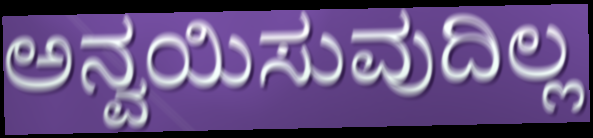
ಅನ್ವಯಿಸುವುದಿಲ್ಲ